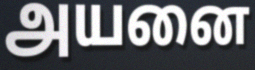
அயனை